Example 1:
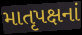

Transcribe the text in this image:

માતૃપક્ષનાં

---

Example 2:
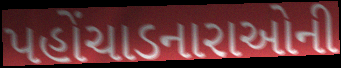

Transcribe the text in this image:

પહોંચાડનારાઓની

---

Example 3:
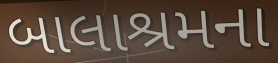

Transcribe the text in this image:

બાલાશ્રમના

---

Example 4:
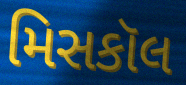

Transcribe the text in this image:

મિસકૉલ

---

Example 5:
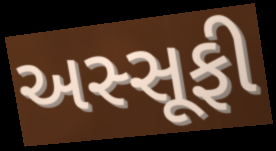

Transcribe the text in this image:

અસ્સૂફી